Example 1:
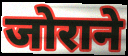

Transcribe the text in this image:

जोराने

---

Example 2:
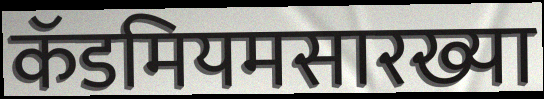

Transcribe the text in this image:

कॅडमियमसारख्या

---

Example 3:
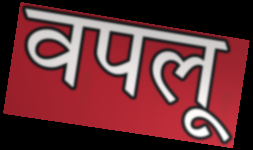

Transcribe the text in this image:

वपलू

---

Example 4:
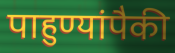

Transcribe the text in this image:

पाहुण्यांपैकी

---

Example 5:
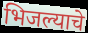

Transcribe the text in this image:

भिजल्याचे